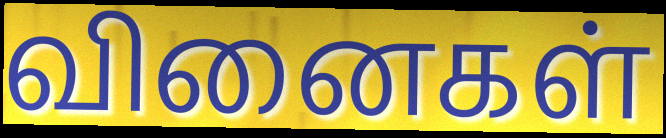
வினைகள்